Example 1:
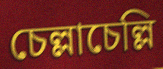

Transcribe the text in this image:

চেল্লাচেল্লি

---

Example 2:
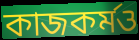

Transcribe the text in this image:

কাজকর্মও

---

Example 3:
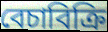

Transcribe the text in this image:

বেচাবিক্রি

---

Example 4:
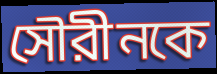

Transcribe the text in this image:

সৌরীনকে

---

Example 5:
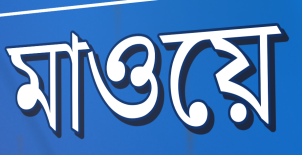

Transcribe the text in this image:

মাওয়ে